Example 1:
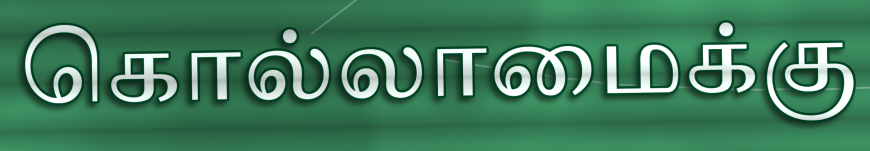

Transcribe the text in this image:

கொல்லாமைக்கு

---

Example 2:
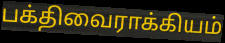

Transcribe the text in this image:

பக்திவைராக்கியம்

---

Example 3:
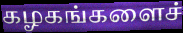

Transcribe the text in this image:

கழகங்களைச்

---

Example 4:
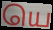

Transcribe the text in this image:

யெ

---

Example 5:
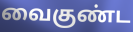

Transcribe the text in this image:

வைகுண்ட